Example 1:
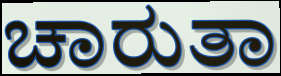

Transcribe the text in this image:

ಚಾರುತಾ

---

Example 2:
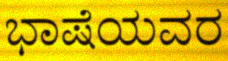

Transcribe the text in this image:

ಭಾಷೆಯವರ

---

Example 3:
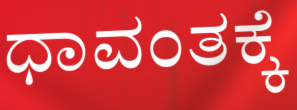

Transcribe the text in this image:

ಧಾವಂತಕ್ಕೆ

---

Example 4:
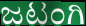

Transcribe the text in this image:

ಜಟಂಗಿ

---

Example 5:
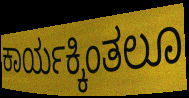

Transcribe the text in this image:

ಕಾರ್ಯಕ್ಕಿಂತಲೂ